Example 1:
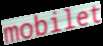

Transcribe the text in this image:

mobilet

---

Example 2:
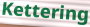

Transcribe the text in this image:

Kettering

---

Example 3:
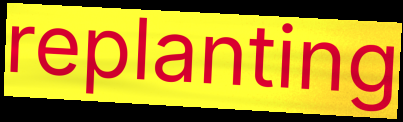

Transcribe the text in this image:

replanting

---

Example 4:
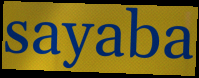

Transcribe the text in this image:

sayaba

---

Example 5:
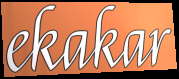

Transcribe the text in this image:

ekakar